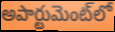
అపార్టుమెంట్‌లో